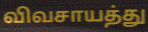
விவசாயத்து